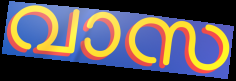
വാസ